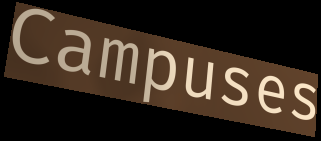
Campuses